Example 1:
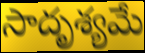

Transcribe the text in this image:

సాదృశ్యమే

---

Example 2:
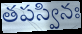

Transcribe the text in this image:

తపస్వినః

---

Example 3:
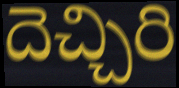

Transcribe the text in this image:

దెచ్చిరి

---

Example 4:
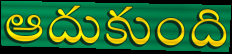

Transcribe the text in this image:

ఆదుకుంది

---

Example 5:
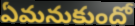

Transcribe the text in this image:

ఏమనుకుందో